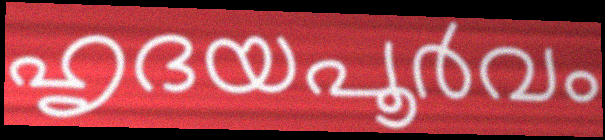
ഹൃദയപൂർവം